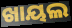
ଖାୟଲ